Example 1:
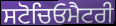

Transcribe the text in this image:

ਸਟੋਚਿਓਮੈਟਰੀ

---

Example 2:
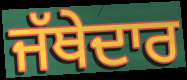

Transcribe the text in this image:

ਜੱਥੇਦਾਰ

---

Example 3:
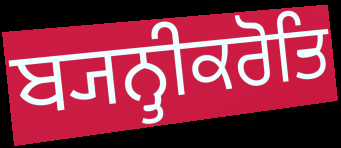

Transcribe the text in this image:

ਬ੍ਯਨ੍ਤੀਕਰੋਤਿ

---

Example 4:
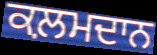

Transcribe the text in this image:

ਕ਼ਲਮਦਾਨ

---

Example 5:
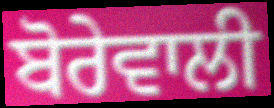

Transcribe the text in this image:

ਬੋਰੇਵਾਲੀ